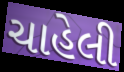
ચાહેલી